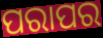
ପରାପର